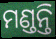
ମଣ୍ଡନ୍ତି